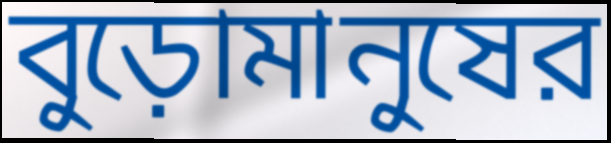
বুড়োমানুষের